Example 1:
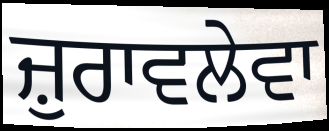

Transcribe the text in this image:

ਜ਼ੁਰਾਵਲੇਵਾ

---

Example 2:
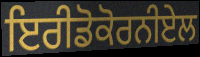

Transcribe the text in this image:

ਇਰੀਡੋਕੋਰਨੀਏਲ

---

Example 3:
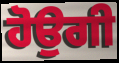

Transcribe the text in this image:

ਹੋਉਗੀ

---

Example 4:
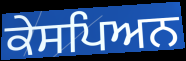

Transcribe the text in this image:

ਕੇਸਪਿਅਨ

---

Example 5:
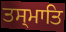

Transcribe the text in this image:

ਤਸ੍ਮਾਤਿ